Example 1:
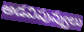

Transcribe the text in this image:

అడవిపువ్వులు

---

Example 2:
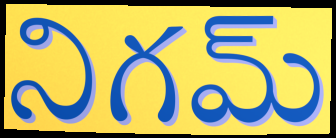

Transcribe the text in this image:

నిగమ్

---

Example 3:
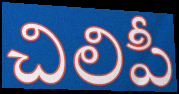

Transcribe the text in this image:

చిలిపీ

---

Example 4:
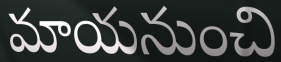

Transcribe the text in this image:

మాయనుంచి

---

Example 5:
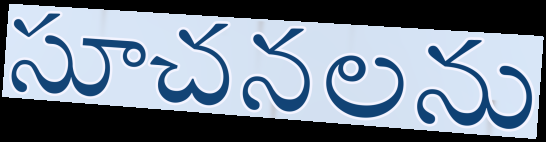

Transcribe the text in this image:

సూచనలను